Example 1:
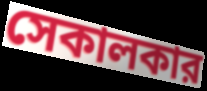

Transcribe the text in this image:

সেকালকার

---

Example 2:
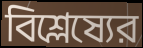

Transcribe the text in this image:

বিশ্লেষ্যের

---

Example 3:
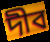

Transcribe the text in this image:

দীব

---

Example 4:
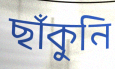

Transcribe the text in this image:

ছাঁকুনি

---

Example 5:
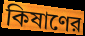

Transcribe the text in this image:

কিষাণের